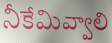
నీకేమివ్వాలి